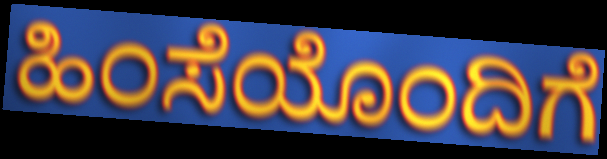
ಹಿಂಸೆಯೊಂದಿಗೆ